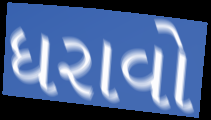
ધરાવો